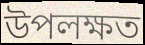
উপলক্ষত